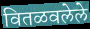
वितळवलेले